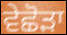
ਵੇਛੋੜਾ